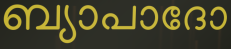
ബ്യാപാദോ